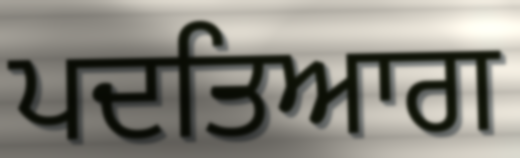
ਪਦਤਿਆਗ